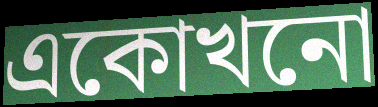
একোখনো